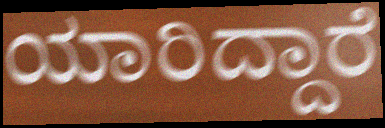
ಯಾರಿದ್ದಾರೆ